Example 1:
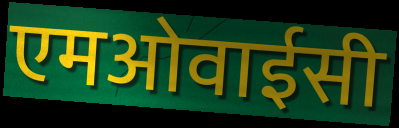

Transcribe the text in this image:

एमओवाईसी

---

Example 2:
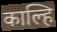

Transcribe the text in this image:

काल्हि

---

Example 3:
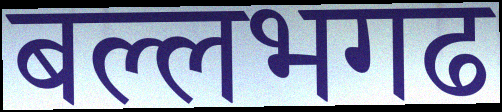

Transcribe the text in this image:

बल्लभगढ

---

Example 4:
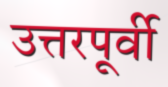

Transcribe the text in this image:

उत्तरपूर्वी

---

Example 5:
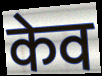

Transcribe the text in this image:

केव